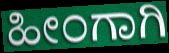
ಹೀಂಗಾಗಿ